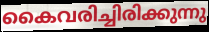
കൈവരിച്ചിരിക്കുന്നു